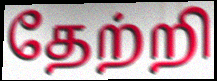
தேற்றி